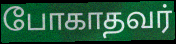
போகாதவர்